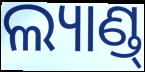
ଲ୍ୟାଣ୍ଡ୍